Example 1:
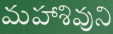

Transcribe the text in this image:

మహాశివుని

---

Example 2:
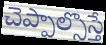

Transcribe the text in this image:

చెప్పాల్సొస్తే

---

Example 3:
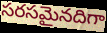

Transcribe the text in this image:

సరసమైనదిగా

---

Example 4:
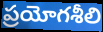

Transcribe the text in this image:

ప్రయోగశీలి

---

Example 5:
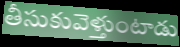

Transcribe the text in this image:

తీసుకువెళ్తుంటాడు